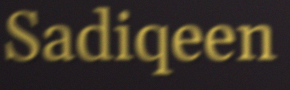
Sadiqeen